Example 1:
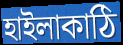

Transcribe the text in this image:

হাইলাকাঠি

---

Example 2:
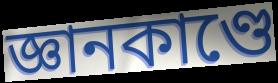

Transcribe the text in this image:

জ্ঞানকাণ্ডে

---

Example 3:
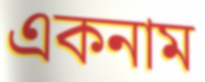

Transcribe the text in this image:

একনাম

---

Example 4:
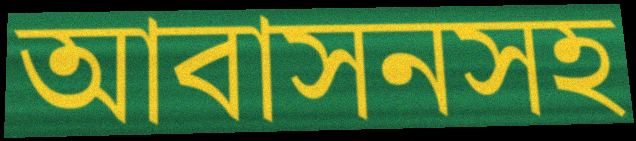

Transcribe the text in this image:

আবাসনসহ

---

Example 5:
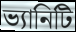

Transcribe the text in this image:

ভ্যানিটি